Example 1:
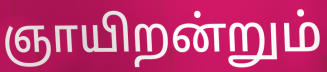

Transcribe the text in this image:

ஞாயிறன்றும்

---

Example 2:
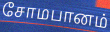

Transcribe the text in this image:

சோமபானம்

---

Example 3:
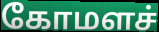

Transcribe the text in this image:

கோமளச்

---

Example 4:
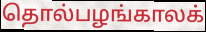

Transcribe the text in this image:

தொல்பழங்காலக்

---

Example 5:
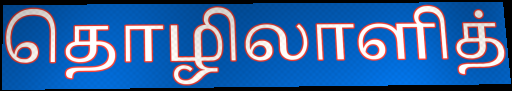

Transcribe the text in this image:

தொழிலாளித்